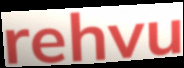
rehvu